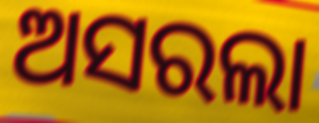
ଅସରଲା